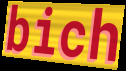
bich